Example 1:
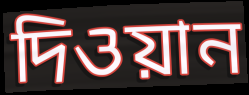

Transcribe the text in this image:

দিওয়ান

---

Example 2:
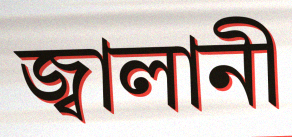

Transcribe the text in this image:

জ্বালানী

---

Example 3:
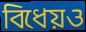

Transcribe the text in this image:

বিধেয়ও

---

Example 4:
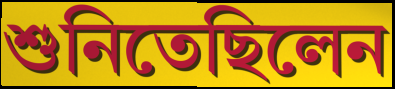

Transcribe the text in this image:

শুনিতেছিলেন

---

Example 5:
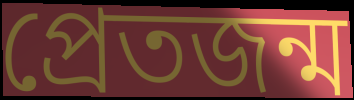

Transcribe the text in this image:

প্রেতজন্ম